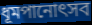
ধূমপানোৎসব